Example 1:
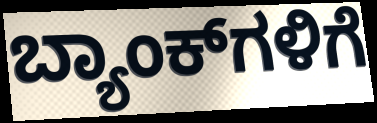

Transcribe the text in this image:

ಬ್ಯಾಂಕ್‌ಗಳಿಗೆ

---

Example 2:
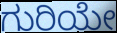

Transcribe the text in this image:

ಗುರಿಯೇ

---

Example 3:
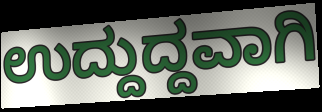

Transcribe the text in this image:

ಉದ್ದುದ್ದವಾಗಿ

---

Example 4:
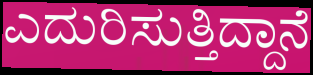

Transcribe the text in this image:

ಎದುರಿಸುತ್ತಿದ್ದಾನೆ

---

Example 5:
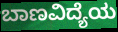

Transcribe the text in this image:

ಬಾಣವಿದ್ಯೆಯ